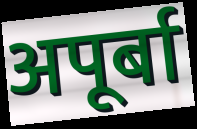
अपूर्बा